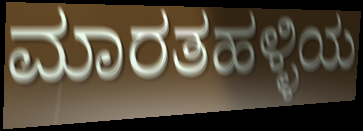
ಮಾರತಹಳ್ಳಿಯ